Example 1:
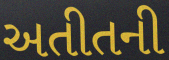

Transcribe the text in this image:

અતીતની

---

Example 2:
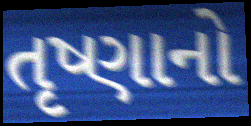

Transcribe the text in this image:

તૃષ્ણાનો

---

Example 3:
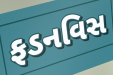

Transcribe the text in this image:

ફડનવિસ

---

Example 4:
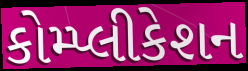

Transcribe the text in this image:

કોમ્પ્લીકેશન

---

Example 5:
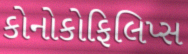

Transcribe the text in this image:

કોનોકોફિલિપ્સ